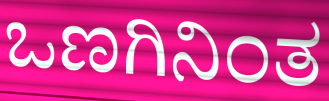
ಒಣಗಿನಿಂತ